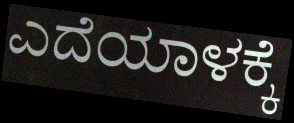
ಎದೆಯಾಳಕ್ಕೆ